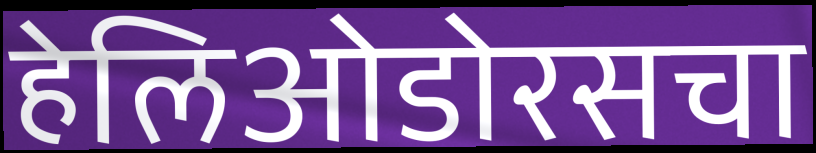
हेलिओडोरसचा